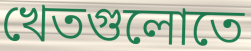
খেতগুলোতে